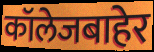
कॉलेजबाहेर